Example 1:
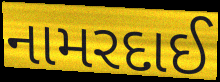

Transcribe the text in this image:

નામરદાઈ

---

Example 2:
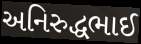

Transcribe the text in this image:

અનિરુદ્ધભાઈ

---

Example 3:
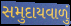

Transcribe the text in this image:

સમુદાયવાળું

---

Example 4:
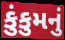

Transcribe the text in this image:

કુંકુમનું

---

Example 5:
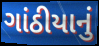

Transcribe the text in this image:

ગાંઠીયાનું